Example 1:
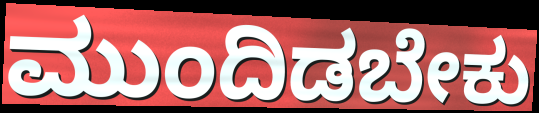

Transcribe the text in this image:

ಮುಂದಿಡಬೇಕು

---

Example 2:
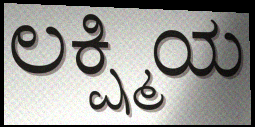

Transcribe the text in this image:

ಲಕ್ಷ್ಮಿಯ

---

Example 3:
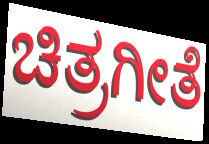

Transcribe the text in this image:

ಚಿತ್ರಗೀತೆ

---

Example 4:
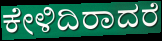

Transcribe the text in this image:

ಕೇಳಿದಿರಾದರೆ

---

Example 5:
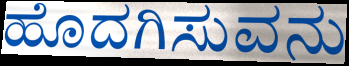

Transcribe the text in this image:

ಹೊದಗಿಸುವನು